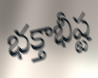
భక్తాభీష్ట